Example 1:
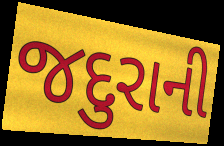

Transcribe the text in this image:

જદુરાની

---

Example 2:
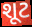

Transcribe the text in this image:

શૂટ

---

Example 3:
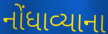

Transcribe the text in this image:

નોંધાવ્યાના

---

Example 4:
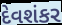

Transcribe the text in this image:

દેવશંકર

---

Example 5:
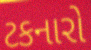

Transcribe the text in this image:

ટકનારો